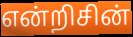
என்றிசின்